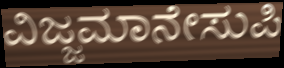
ವಿಜ್ಜಮಾನೇಸುಪಿ